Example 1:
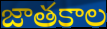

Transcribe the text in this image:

జాతకాల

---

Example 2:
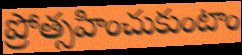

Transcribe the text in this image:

ప్రోత్సహించుకుంటాం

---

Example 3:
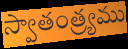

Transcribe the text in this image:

స్వాతంత్ర్యము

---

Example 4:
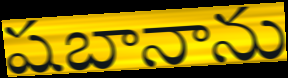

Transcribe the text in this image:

షబానాను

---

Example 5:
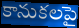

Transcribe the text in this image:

కానుకలపై